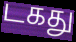
டகது